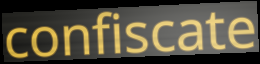
confiscate